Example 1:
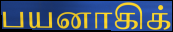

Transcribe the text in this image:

பயனாகிக்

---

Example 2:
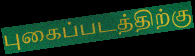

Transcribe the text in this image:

புகைப்படத்திற்கு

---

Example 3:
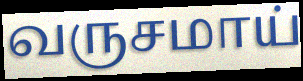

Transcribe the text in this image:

வருசமாய்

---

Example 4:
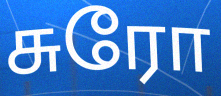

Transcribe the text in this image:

சுரோ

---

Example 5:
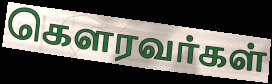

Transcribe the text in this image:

கௌரவர்கள்